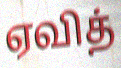
ஏவித்